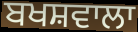
ਬਖਸ਼ਵਾਲਾ